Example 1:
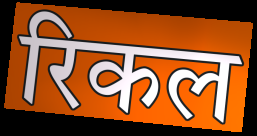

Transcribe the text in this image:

रिकल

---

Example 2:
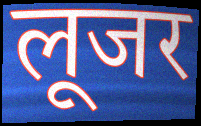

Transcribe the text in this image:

लूजर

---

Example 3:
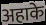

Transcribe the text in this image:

अहाके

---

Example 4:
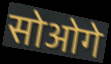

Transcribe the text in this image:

सोओगे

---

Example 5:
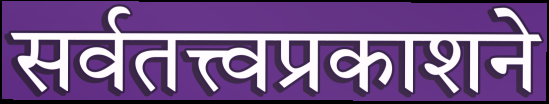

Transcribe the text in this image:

सर्वतत्त्वप्रकाशने